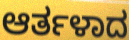
ಆರ್ತಳಾದ